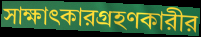
সাক্ষাৎকারগ্রহণকারীর